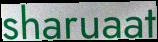
sharuaat